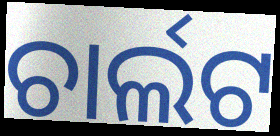
ଚାର୍ଲଟ